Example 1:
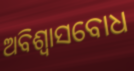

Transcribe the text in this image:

ଅବିଶ୍ୱାସବୋଧ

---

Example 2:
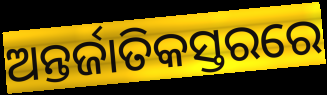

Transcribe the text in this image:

ଅନ୍ତର୍ଜାତିକସ୍ତରରେ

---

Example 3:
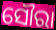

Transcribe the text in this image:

ସୌରା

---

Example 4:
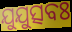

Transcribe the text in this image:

ଯୁଯୁତ୍ସବଃ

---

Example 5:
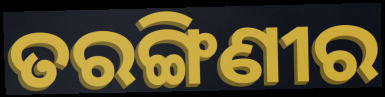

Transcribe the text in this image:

ତରଙ୍ଗିଣୀର